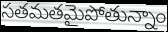
సతమతమైపోతున్నాం